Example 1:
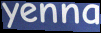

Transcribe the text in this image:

yenna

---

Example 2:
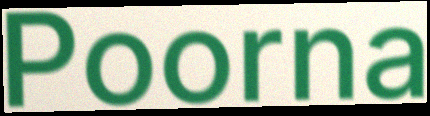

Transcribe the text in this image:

Poorna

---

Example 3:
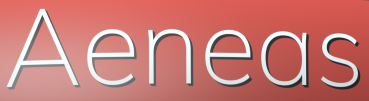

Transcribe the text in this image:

Aeneas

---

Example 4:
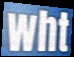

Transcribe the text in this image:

wht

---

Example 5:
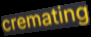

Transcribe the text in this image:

cremating